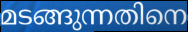
മടങ്ങുന്നതിനെ